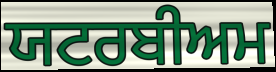
ਯਟਰਬੀਅਮ